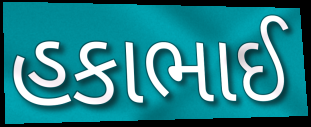
હકાભાઈ